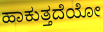
ಹಾಕುತ್ತದೆಯೋ